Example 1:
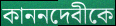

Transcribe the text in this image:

কাননদেবীকে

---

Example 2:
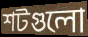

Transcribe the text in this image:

শটগুলো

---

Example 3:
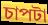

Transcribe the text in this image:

চাপটা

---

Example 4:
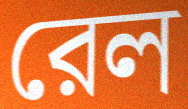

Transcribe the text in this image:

রেল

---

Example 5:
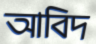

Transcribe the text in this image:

আবিদ